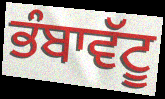
ਭੰਬਾਵੱਟੂ